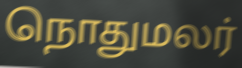
நொதுமலர்